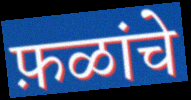
फ़ळांचे